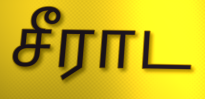
சீராட